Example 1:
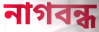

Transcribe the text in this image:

নাগবন্ধ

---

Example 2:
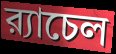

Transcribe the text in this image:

র‍্যাচেল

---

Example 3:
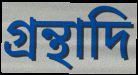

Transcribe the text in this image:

গ্রন্থাদি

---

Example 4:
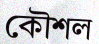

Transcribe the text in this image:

কৌশল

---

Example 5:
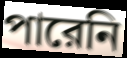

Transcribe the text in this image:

পারেনি